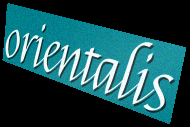
orientalis